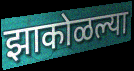
झाकोळल्या